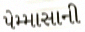
પેમ્માસાની